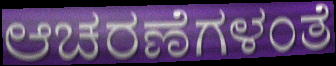
ಆಚರಣೆಗಳಂತೆ